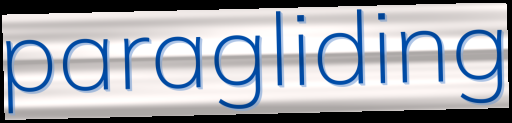
paragliding